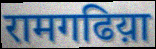
रामगढिय़ा